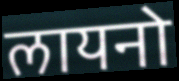
लायनो